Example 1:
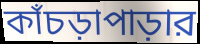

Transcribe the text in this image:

কাঁচড়াপাড়ার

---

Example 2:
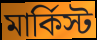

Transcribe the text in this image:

মার্কিস্ট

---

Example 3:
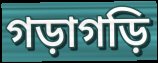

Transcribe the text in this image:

গড়াগড়ি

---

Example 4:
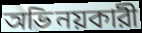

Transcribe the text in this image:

অভিনয়কারী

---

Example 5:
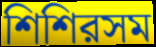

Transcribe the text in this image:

শিশিরসম